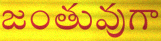
జంతువుగా